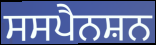
ਸਸਪੈਨਸ਼ਨ